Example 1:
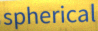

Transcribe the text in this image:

spherical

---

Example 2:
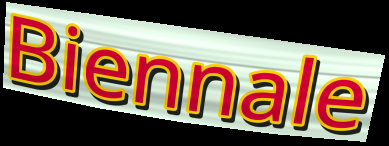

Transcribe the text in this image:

Biennale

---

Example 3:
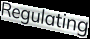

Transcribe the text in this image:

Regulating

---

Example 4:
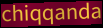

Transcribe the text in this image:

chiqqanda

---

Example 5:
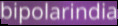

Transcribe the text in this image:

bipolarindia